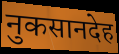
नुकसानदेह